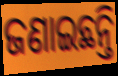
ଜଣାଇଛନ୍ତି